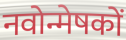
नवोन्मेषकों